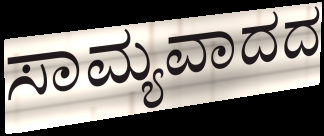
ಸಾಮ್ಯವಾದದ